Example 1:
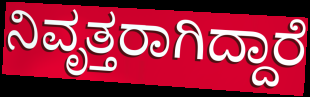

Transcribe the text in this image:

ನಿವೃತ್ತರಾಗಿದ್ದಾರೆ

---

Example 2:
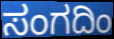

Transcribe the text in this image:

ಸಂಗದಿಂ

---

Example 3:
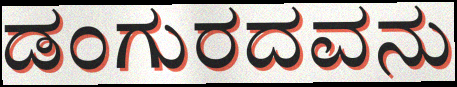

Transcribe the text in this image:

ಡಂಗುರದವನು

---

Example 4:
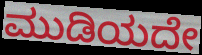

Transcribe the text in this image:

ಮುಡಿಯದೇ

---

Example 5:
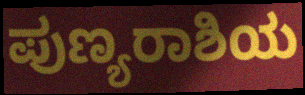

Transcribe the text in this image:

ಪುಣ್ಯರಾಶಿಯ